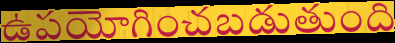
ఉపయోగించబడుతుంది